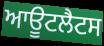
ਆਊਟਲੈਟਸ